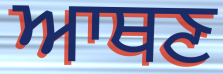
ਆਥਣ